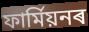
ফাৰ্মিয়নৰ